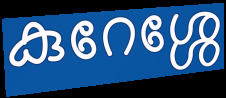
കുറേശ്ശേ